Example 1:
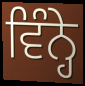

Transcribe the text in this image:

ਵਿੰਨ੍ਹੇ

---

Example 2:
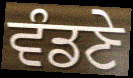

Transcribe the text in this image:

ਵੰਡਣੇ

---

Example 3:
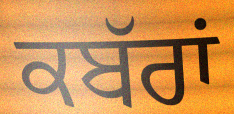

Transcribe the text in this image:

ਕਬੱਰਾਂ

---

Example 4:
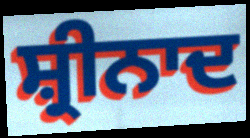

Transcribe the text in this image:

ਸ਼੍ਰੀਨਾਦ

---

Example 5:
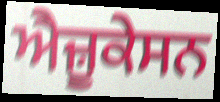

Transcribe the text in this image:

ਐਜ਼ੂਕੇਸਨ